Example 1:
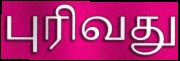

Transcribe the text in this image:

புரிவது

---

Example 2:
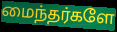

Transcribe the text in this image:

மைந்தர்களே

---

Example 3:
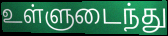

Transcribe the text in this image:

உள்ளுடைந்து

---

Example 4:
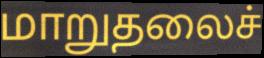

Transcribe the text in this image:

மாறுதலைச்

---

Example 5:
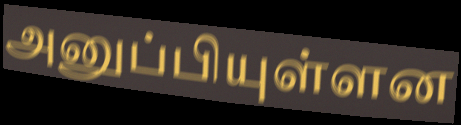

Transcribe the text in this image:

அனுப்பியுள்ளன